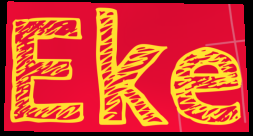
Eke